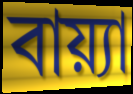
বায়্যা